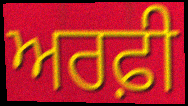
ਅਰਫ਼ੀ